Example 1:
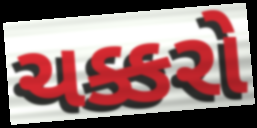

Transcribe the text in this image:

ચક્કરો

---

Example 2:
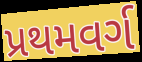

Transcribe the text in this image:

પ્રથમવર્ગ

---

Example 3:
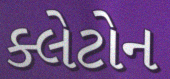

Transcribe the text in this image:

ક્લેટોન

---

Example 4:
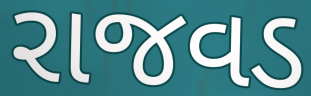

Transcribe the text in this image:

રાજવડ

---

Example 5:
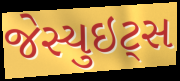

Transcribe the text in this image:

જેસ્યુઇટ્સ